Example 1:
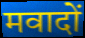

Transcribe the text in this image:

मवादों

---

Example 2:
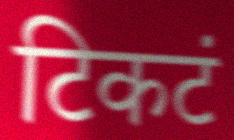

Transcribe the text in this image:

टिकटं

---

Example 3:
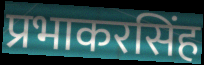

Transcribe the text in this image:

प्रभाकरसिंह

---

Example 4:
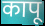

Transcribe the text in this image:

कापू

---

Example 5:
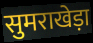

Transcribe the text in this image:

सुमराखेड़ा